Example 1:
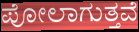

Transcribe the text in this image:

ಪೋಲಾಗುತ್ತವೆ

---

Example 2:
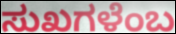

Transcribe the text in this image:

ಸುಖಗಳೆಂಬ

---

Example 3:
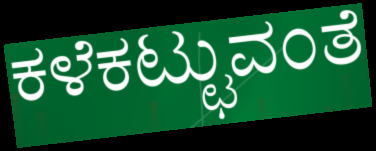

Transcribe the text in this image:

ಕಳೆಕಟ್ಟುವಂತೆ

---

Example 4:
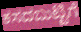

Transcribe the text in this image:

ಕಸದಬುಟ್ಟಿಗೆ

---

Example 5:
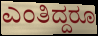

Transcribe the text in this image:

ಎಂತಿದ್ದರೂ